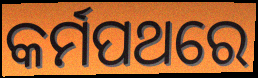
କର୍ମପଥରେ